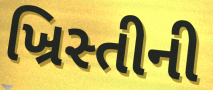
ખ્રિસ્તીની